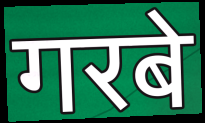
गरबे